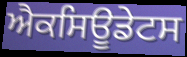
ਐਕਸਿਊਡੇਟਸ